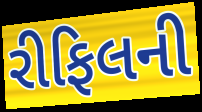
રીફિલની